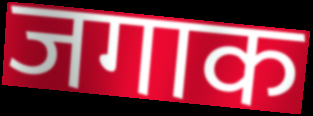
जगाक